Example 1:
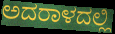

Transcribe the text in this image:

ಅದರಾಳದಲ್ಲಿ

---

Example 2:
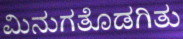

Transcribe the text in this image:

ಮಿನುಗತೊಡಗಿತು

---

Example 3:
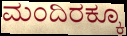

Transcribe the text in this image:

ಮಂದಿರಕ್ಕೂ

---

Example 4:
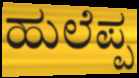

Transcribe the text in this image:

ಹುಲೆಪ್ಪ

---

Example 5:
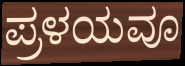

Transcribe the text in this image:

ಪ್ರಳಯವೂ